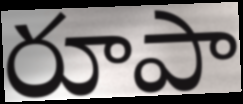
రూపా